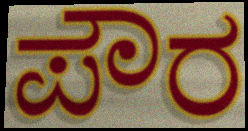
ಪೌರ